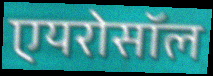
एयरोसॉल